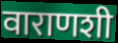
वाराणशी